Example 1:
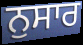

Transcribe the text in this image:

ਨੁਸਾਰ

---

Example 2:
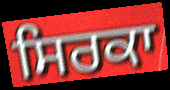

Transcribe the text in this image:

ਸਿਰਕਾ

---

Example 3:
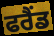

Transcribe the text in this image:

ਫਰੈਂਡ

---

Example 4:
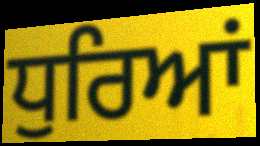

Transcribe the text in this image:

ਧੁਰਿਆਂ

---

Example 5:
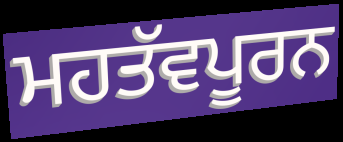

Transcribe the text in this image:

ਮਹਤੱਵਪੂਰਨ